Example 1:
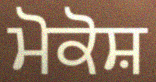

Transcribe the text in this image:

ਮੋਕੋਸ਼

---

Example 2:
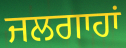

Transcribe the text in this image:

ਜਲਗਾਹਾਂ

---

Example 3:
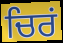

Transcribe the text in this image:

ਚਿਰਂ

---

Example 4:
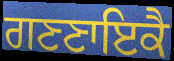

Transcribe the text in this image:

ਗਣਣਾਇਕੈ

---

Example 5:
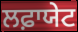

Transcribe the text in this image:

ਲਫ਼ਾਯੇਟ